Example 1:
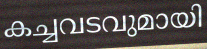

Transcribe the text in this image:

കച്ചവടവുമായി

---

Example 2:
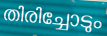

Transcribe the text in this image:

തിരിച്ചോടും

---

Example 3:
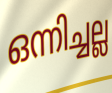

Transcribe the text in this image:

ഒന്നിച്ചല്ല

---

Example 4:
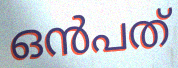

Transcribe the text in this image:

ഒൻപത്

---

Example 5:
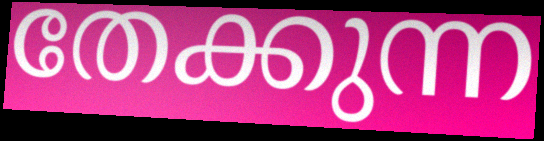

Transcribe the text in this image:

തേക്കുന്ന